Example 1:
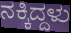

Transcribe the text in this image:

ನಕ್ಕಿದ್ದಳು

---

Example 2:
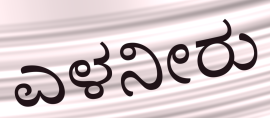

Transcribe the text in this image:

ಎಳನೀರು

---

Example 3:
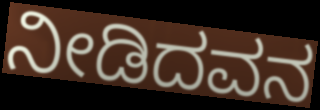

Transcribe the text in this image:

ನೀಡಿದವನ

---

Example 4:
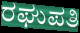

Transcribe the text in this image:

ರಘುಪತಿ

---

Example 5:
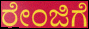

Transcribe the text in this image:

ರೇಂಜಿಗೆ